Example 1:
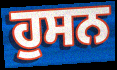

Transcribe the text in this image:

ਹੁਸਨ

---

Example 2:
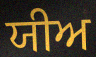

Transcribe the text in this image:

ਯੀਅ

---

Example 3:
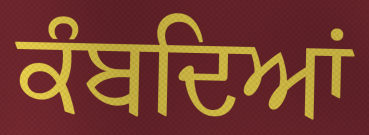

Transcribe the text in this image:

ਕੰਬਦਿਆਂ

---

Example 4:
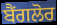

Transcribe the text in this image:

ਬੈਂਗਲੋਰ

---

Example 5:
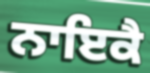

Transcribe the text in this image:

ਨਾਇਕੈ